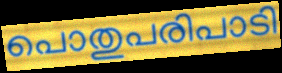
പൊതുപരിപാടി